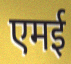
एमई